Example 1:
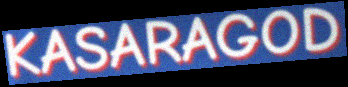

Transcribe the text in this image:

KASARAGOD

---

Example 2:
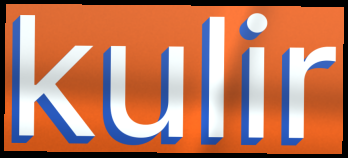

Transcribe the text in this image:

kulir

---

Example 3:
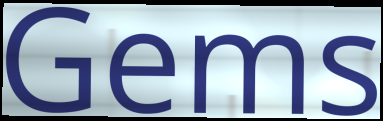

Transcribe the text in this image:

Gems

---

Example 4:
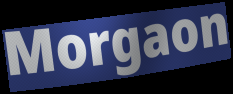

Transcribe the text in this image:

Morgaon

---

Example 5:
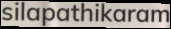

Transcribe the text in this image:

silapathikaram